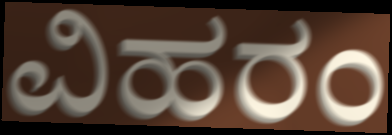
ವಿಹರಂ